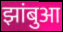
झांबुआ